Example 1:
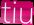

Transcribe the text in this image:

tiu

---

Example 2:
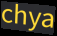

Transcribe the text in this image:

chya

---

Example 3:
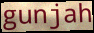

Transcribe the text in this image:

gunjah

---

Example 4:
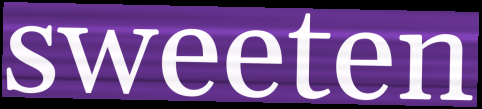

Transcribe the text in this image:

sweeten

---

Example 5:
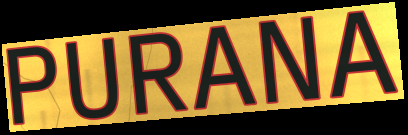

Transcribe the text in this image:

PURANA